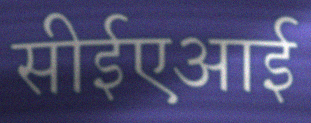
सीईएआई